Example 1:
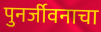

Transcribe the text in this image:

पुनर्जीवनाचा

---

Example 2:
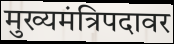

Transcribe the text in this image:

मुख्यमंत्रिपदावर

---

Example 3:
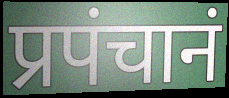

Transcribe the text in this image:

प्रपंचानं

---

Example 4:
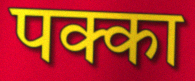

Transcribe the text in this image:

पक्का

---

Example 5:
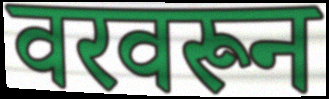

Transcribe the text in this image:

वरवरून